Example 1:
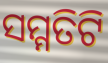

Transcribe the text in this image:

ସମ୍ମତିଟି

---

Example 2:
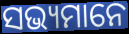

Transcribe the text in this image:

ସଭ୍ୟମାନେ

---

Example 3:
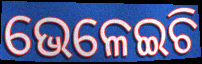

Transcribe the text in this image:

ଭେଳେଇଚି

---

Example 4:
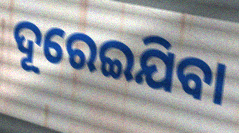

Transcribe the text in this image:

ଦୂରେଇଯିବା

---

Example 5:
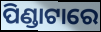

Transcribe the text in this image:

ପିଣ୍ଡାଟାରେ